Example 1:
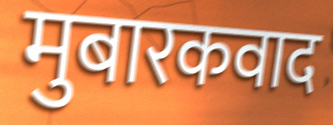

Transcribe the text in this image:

मुबारकवाद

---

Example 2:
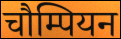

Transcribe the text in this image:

चौम्पियन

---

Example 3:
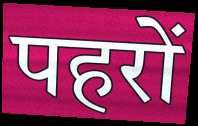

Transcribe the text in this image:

पहरों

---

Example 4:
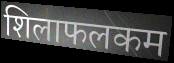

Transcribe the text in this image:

शिलाफलकम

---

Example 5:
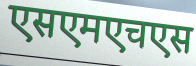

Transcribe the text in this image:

एसएमएचएस